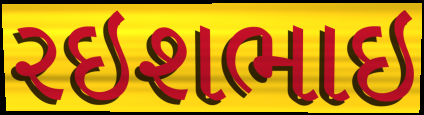
રઇશભાઇ